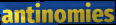
antinomies